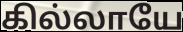
கில்லாயே